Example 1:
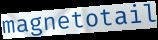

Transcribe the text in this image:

magnetotail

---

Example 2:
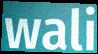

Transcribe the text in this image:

wali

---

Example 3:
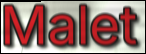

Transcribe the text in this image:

Malet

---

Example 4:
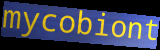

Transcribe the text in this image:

mycobiont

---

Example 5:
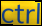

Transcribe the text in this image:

ctrl